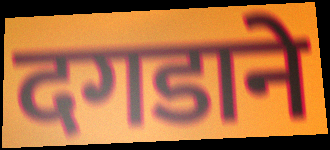
दगडाने